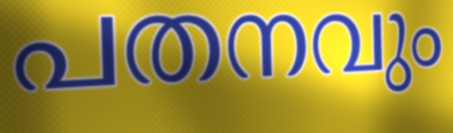
പതനവും